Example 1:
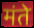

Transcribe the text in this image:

मंते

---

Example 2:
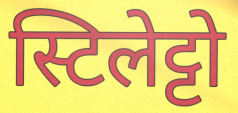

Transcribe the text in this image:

स्टिलेट्टो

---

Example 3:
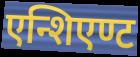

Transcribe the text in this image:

एन्शिएण्ट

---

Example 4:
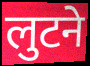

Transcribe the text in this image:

लुटने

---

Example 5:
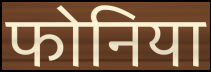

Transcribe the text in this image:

फोनिया